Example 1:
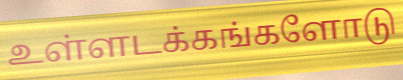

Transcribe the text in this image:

உள்ளடக்கங்களோடு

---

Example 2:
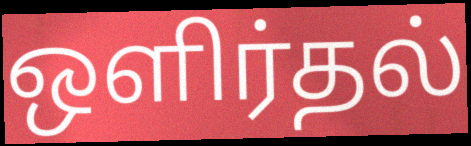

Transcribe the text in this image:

ஒளிர்தல்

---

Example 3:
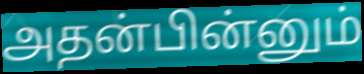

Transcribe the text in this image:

அதன்பின்னும்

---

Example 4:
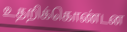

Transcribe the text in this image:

உதறிக்கொண்டன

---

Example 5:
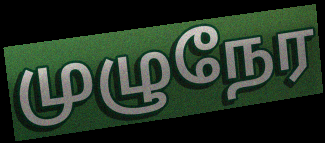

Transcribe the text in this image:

முழுநேர